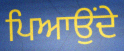
ਪਿਆਉਂਦੇ